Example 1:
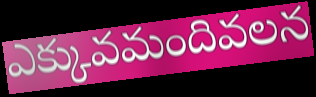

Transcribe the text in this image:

ఎక్కువమందివలన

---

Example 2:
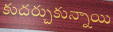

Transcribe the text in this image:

కుదర్చుకున్నాయి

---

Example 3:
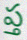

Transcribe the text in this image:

ప్త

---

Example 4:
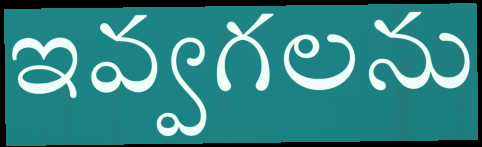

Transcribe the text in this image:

ఇవ్వగలను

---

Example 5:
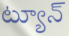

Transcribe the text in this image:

ట్యూన్